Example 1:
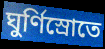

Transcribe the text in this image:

ঘুর্ণিস্রোতে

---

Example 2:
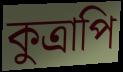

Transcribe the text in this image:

কুত্রাপি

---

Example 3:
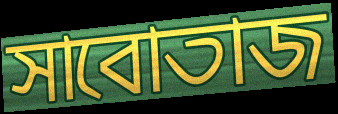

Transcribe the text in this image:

সাবোতাজ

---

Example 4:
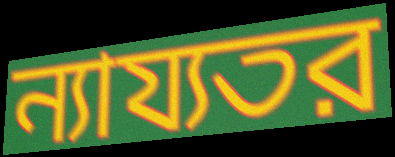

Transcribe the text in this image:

ন্যায্যতর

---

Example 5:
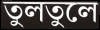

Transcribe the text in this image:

তুলতুলে